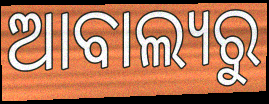
ଆବାଲ୍ୟରୁ